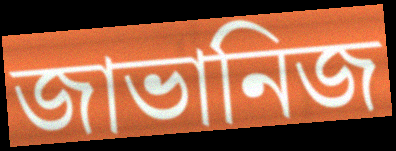
জাভানিজ